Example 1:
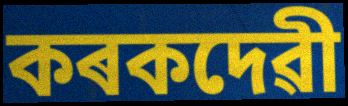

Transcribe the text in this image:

কৰকদেৱী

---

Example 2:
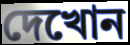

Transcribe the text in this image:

দেখোন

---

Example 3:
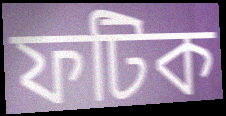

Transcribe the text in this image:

ফটিক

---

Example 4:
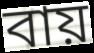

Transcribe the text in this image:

বায়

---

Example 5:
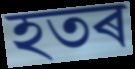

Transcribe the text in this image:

হতৰ